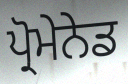
ਪ੍ਰੋਮੇਨੇਡ